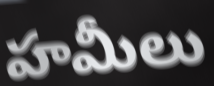
హమీలు